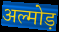
अल्मोड़